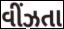
વીંઝતા